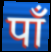
पाँ